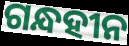
ଗନ୍ଧହୀନ